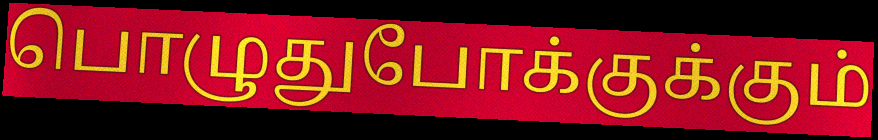
பொழுதுபோக்குக்கும்